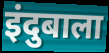
इंदुबाला